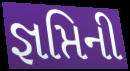
જ્ઞપ્તિની